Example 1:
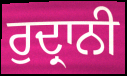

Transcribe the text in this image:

ਰੁਦ੍ਰਾਨੀ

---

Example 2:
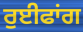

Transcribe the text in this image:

ਰੁਈਫਾਂਗ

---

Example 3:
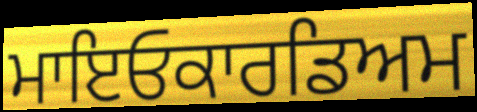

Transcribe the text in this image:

ਮਾਇਓਕਾਰਡਿਅਮ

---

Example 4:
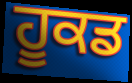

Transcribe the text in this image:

ਹੂਕਡ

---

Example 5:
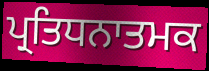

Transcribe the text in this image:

ਪ੍ਰਤਿਧਨਾਤਮਕ